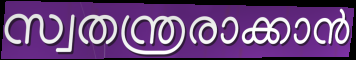
സ്വതന്ത്രരാക്കാൻ